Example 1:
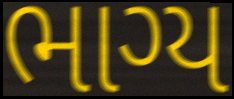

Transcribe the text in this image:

ભાગ્ય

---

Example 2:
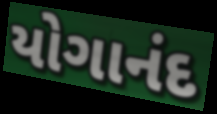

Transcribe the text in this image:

યોગાનંદ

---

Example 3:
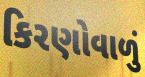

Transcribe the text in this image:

કિરણોવાળું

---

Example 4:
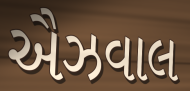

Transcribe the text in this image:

ઐઝવાલ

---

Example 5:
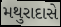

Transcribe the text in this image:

મથુરાદાસે